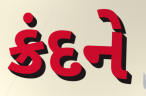
ક્રંદને